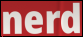
nerd